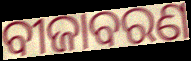
ବୀଜାବରଣ